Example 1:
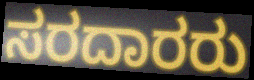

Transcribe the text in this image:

ಸರದಾರರು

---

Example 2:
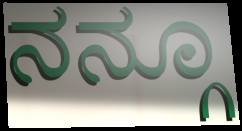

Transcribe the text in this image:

ನನ್ಗೂ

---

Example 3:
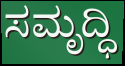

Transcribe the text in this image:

ಸಮೃದ್ಧಿ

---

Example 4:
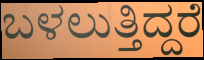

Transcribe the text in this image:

ಬಳಲುತ್ತಿದ್ದರೆ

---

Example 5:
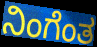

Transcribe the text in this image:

ನಿಂಗೆಂತ